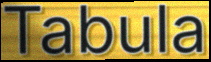
Tabula